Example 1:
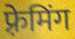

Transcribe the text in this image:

फ़्रेमिंग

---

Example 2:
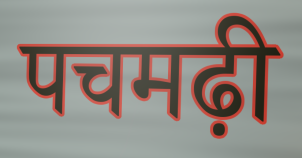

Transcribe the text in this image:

पचमढ़ी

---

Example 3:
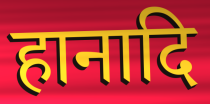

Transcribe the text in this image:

हानादि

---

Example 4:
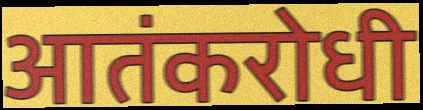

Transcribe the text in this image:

आतंकरोधी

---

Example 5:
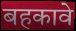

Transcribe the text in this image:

बहकावे